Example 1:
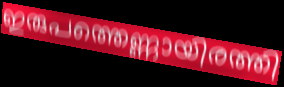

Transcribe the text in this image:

ഇരുപത്തെണ്ണായിരത്തി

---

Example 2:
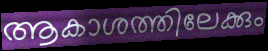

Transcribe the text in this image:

ആകാശത്തിലേക്കും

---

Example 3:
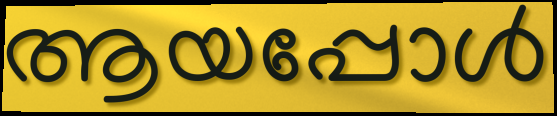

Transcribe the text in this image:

ആയപ്പോൾ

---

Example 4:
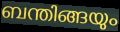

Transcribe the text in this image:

ബന്തിങ്ങയും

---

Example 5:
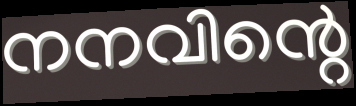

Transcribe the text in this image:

നനവിന്റെ